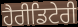
ਹੈਰੀਡਿਟੇਰੀ